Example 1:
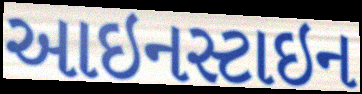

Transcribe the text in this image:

આઇનસ્ટાઇન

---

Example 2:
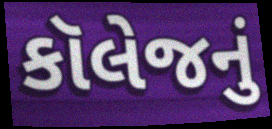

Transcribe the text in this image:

કૉલેજનું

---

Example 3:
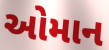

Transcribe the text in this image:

ઓમાન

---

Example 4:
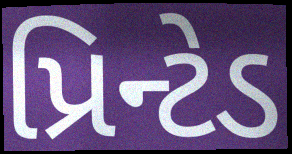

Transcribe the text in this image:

પ્રિન્ટેડ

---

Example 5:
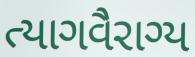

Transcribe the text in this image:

ત્યાગવૈરાગ્ય